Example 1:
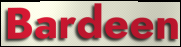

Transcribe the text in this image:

Bardeen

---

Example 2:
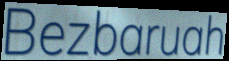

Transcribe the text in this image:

Bezbaruah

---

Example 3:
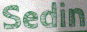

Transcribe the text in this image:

Sedin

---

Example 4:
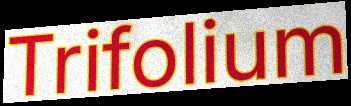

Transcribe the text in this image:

Trifolium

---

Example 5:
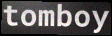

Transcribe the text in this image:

tomboy